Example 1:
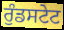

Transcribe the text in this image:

ਰੁੰਡਸਟੇਟ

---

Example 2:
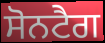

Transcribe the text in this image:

ਸੋਨਟੈਗ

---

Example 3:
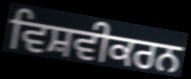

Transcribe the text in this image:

ਵਿਸ਼ਵੀਕਰਨ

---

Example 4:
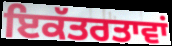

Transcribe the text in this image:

ਇਕੱਤਰਤਾਵਾਂ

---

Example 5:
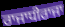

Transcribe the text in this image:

ਰਾਜਾਧੀਰਾਜਾ